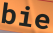
bie